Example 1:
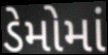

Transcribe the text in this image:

ડેમોમાં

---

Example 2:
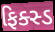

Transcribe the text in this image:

ફિક્સ્ડ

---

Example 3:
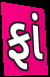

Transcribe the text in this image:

ફાં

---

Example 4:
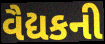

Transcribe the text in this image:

વૈદ્યકની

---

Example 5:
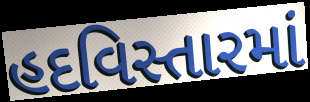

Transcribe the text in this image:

હદવિસ્તારમાં